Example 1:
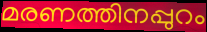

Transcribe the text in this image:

മരണത്തിനപ്പുറം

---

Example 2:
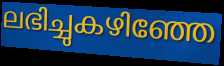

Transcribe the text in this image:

ലഭിച്ചുകഴിഞ്ഞേ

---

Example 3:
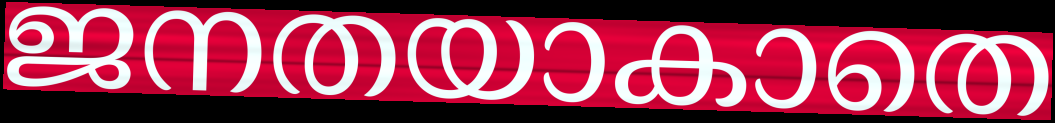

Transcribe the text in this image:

ജനതയാകാതെ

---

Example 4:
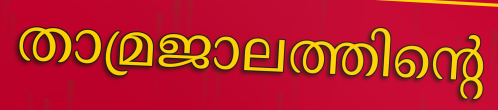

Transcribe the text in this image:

താമ്രജാലത്തിന്റെ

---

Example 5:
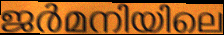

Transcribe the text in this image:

ജർമനിയിലെ